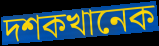
দশকখানেক